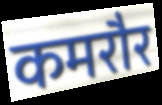
कमरौर